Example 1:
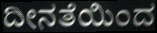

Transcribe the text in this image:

ದೀನತೆಯಿಂದ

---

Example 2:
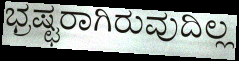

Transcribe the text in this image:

ಭ್ರಷ್ಟರಾಗಿರುವುದಿಲ್ಲ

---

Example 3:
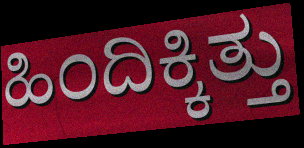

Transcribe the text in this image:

ಹಿಂದಿಕ್ಕಿತ್ತು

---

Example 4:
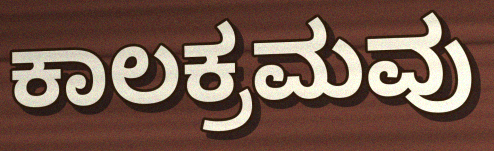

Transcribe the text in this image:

ಕಾಲಕ್ರಮವು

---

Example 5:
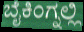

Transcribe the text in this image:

ಬೈಕಿಂಗ್ನಲ್ಲಿ